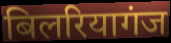
बिलरियागंज